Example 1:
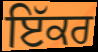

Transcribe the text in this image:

ਇੱਕਰ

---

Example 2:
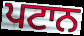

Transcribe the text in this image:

ਪਟਾਨ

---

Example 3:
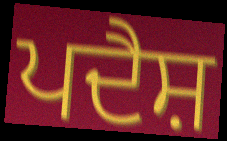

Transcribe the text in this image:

ਪਦੈਸ਼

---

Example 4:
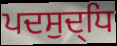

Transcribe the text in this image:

ਪਦਸੁਦ੍ਧਿ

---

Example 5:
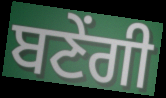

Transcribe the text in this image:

ਬਣੇਂਗੀ